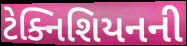
ટેક્નિશિયનની